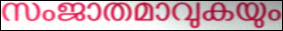
സംജാതമാവുകയും